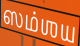
ஸம்ஶய